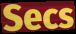
Secs